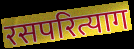
रसपरित्याग